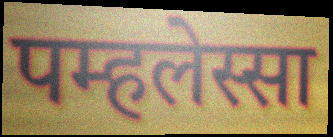
पम्हलेस्सा